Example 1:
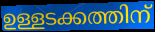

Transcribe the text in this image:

ഉള്ളടക്കത്തിന്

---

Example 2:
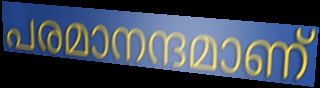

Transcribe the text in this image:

പരമാനന്ദമാണ്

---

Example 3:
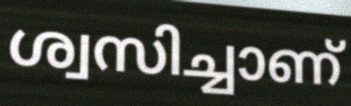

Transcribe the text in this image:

ശ്വസിച്ചാണ്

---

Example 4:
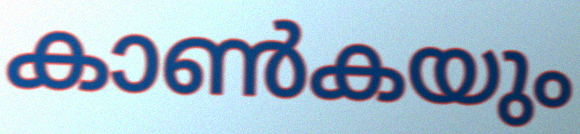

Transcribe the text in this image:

കാൺകയും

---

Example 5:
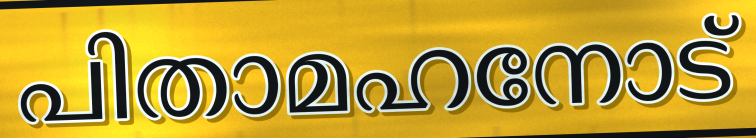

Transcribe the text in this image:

പിതാമഹനോട്